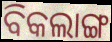
ବିକଲାଙ୍ଗ